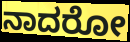
ನಾದರೋ